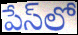
పేస్‌లో